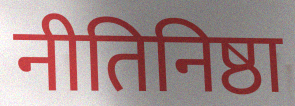
नीतिनिष्ठा